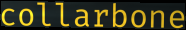
collarbone